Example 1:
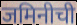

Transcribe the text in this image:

जमिनीची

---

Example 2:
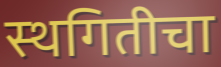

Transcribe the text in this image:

स्थगितीचा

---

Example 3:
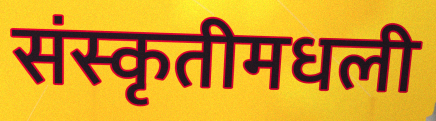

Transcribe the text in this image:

संस्कृतीमधली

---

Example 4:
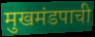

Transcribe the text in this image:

मुखमंडपाची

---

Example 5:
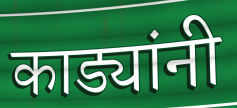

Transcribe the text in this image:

काड्यांनी